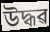
উদ্ধৱ